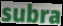
subra